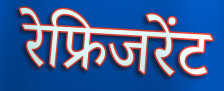
रेफ्रिजरेंट